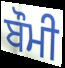
ਬੌਮੀ